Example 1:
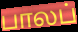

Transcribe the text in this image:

பாலப்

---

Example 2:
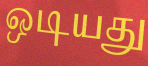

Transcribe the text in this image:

ஒடியது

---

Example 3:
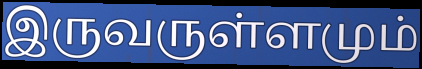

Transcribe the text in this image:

இருவருள்ளமும்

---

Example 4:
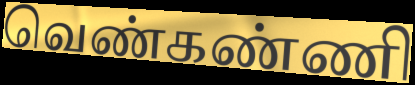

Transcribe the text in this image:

வெண்கண்ணி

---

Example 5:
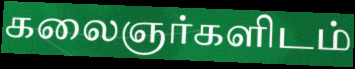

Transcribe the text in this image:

கலைஞர்களிடம்